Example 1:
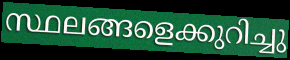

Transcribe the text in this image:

സ്ഥലങ്ങളെക്കുറിച്ചു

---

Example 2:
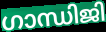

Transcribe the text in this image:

ഗാന്ധിജി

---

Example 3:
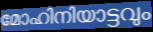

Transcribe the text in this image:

മോഹിനിയാട്ടവും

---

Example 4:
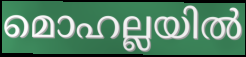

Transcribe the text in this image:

മൊഹല്ലയിൽ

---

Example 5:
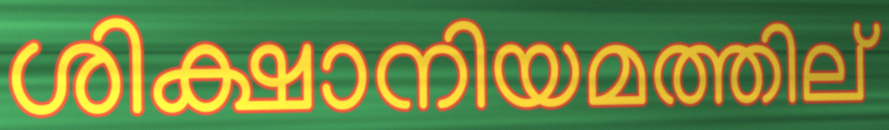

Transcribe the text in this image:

ശിക്ഷാനിയമത്തില്